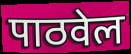
पाठवेल